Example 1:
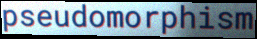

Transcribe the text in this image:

pseudomorphism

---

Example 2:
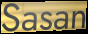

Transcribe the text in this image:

Sasan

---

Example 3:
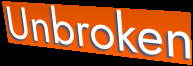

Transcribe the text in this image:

Unbroken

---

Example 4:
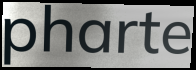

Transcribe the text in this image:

pharte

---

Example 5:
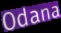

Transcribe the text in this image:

Odana